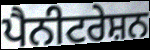
ਪੈਨੀਟਰੇਸ਼ਨ